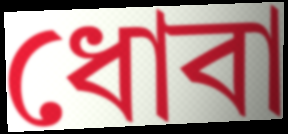
ধোবা